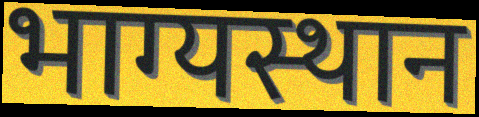
भाग्यस्थान